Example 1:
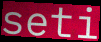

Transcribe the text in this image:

seti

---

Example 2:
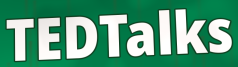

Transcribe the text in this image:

TEDTalks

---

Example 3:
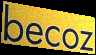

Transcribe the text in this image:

becoz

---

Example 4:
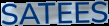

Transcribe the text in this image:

SATEES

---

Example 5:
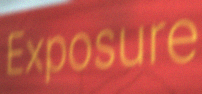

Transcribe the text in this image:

Exposure